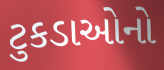
ટુકડાઓનો